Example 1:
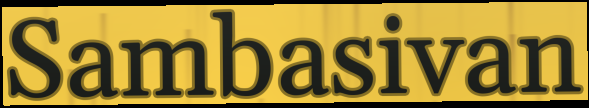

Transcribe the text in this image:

Sambasivan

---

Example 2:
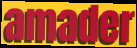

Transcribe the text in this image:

amader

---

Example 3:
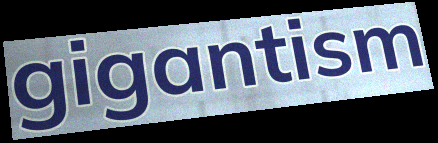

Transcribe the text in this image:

gigantism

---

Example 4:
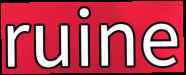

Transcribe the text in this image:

ruine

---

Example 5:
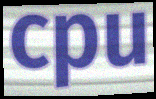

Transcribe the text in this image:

cpu